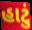
હાટું